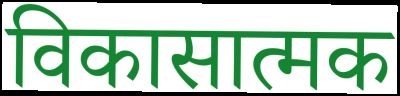
विकासात्मक